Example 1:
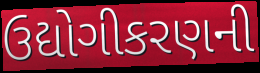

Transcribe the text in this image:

ઉદ્યોગીકરણની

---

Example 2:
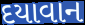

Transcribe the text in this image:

દયાવાન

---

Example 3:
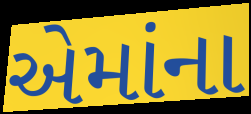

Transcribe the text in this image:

એમાંના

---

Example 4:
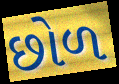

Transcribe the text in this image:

છોળ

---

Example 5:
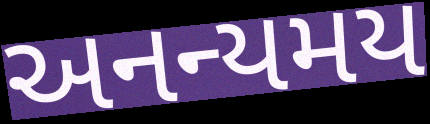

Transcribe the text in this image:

અનન્યમય